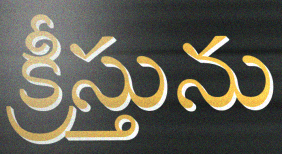
క్రీస్తును